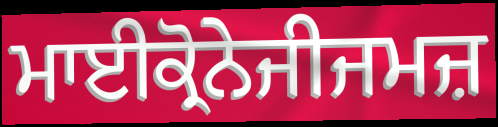
ਮਾਈਕ੍ਰੋਨੇਜੀਜਮਜ਼